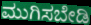
ಮುಗಿಸಬೇಡಿ